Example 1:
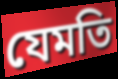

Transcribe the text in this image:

যেমতি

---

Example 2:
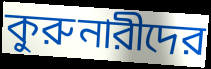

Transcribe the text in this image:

কুরুনারীদের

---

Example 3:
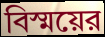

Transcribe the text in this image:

বিস্ময়ের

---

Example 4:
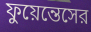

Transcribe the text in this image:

ফুয়েন্তেসের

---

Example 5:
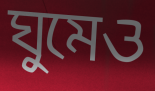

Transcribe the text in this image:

ঘুমেও